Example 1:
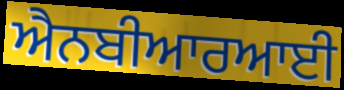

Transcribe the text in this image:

ਐਨਬੀਆਰਆਈ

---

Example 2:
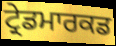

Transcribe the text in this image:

ਟ੍ਰੇਡਮਾਰਕਡ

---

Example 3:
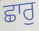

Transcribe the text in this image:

ਛਾਰੁ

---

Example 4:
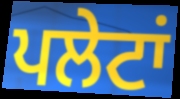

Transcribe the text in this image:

ਪਲੇਟਾਂ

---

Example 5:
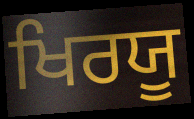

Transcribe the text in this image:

ਖਿਰਯੂ